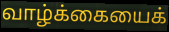
வாழ்க்கையைக்